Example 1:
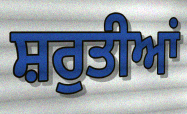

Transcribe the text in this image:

ਸ਼ਰੁਤੀਆਂ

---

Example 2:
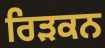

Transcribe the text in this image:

ਰਿੜਕਨ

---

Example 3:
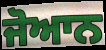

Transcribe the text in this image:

ਜੋਆਨ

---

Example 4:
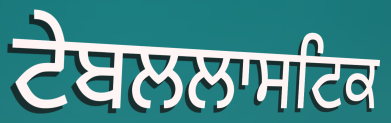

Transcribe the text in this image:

ਟੇਬਲਲਾਸਟਿਕ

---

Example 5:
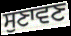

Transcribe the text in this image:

ਸੁਣਾਵਣ